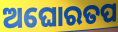
ଅଘୋରତପ